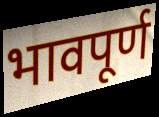
भावपूर्ण